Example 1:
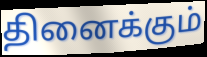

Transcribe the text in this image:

தினைக்கும்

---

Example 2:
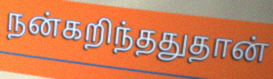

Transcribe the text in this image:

நன்கறிந்ததுதான்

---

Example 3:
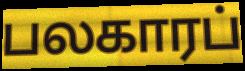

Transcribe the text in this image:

பலகாரப்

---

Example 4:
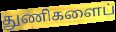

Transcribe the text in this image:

துணிகளைப்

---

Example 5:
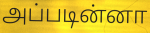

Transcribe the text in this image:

அப்படின்னா